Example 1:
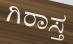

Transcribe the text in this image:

ಗಿರಾಸ್ತ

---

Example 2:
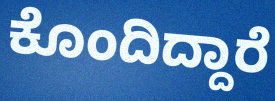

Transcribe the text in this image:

ಕೊಂದಿದ್ದಾರೆ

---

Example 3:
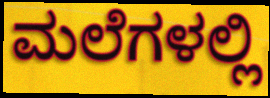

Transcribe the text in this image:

ಮಲೆಗಳಲ್ಲಿ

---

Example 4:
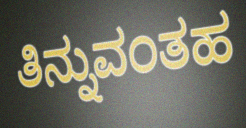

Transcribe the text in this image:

ತಿನ್ನುವಂತಹ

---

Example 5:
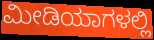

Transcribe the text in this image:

ಮೀಡಿಯಾಗಳಲ್ಲಿ